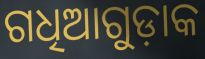
ଗଧିଆଗୁଡ଼ାକ